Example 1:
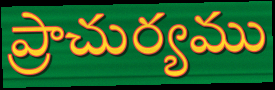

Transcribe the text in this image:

ప్రాచుర్యము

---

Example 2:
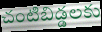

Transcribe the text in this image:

చంటిబిడ్డలకు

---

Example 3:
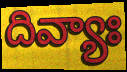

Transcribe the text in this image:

దివ్యాః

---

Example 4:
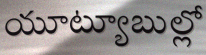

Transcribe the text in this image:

యూట్యూబుల్లో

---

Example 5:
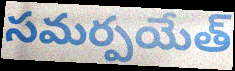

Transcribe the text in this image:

సమర్పయేత్